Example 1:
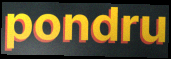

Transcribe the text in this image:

pondru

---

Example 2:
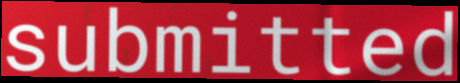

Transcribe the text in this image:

submitted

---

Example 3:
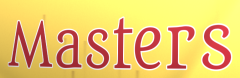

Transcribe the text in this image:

Masters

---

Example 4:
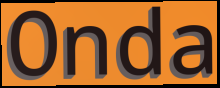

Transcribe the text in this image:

Onda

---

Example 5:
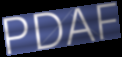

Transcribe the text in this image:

PDAF